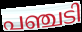
പഞ്ചടി